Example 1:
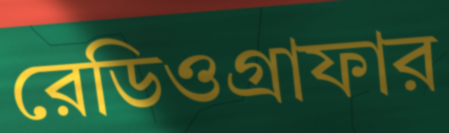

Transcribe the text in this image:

রেডিওগ্রাফার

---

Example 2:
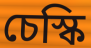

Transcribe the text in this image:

চেস্কি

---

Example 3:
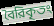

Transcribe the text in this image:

বৈরিকৃতং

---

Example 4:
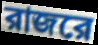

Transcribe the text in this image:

রাজরে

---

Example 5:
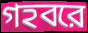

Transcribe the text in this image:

গহবরে